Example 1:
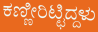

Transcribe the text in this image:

ಕಣ್ಣೀರಿಟ್ಟಿದ್ದಳು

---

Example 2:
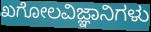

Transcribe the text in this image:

ಖಗೋಲವಿಜ್ಞಾನಿಗಳು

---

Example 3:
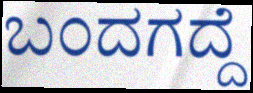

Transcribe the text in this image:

ಬಂದಗದ್ದೆ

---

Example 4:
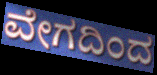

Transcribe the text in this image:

ವೇಗದಿಂದ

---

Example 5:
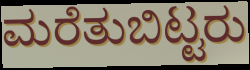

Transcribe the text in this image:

ಮರೆತುಬಿಟ್ಟರು